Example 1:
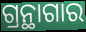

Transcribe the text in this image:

ଗ୍ରନ୍ଥାଗାର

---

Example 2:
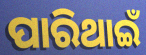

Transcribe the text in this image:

ପାରିଥାଇଁ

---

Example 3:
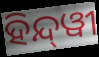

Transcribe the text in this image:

ହିନ୍ଦ୍‍ୱୀ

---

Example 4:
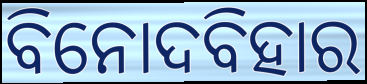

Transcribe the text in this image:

ବିନୋଦବିହାର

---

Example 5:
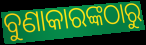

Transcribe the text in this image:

ବୁଣାକାରଙ୍କଠାରୁ